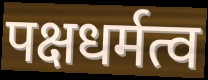
पक्षधर्मत्व